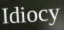
Idiocy